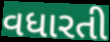
વધારતી